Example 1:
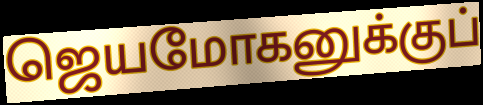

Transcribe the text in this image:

ஜெயமோகனுக்குப்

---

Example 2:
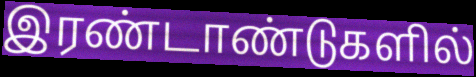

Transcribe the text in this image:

இரண்டாண்டுகளில்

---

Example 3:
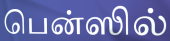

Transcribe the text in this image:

பென்ஸில்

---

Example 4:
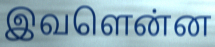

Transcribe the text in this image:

இவளென்ன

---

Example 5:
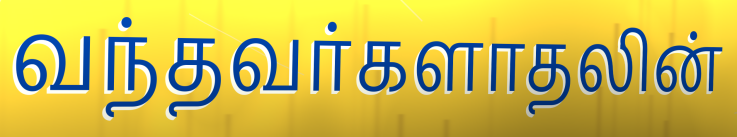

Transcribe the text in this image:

வந்தவர்களாதலின்